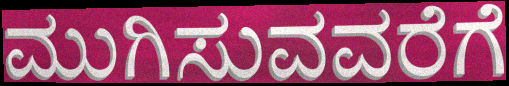
ಮುಗಿಸುವವರೆಗೆ